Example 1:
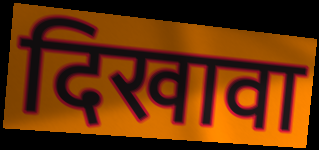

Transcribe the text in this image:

दिखावा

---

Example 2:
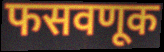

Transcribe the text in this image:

फसवणूक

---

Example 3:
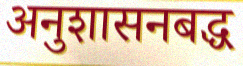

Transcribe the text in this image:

अनुशासनबद्ध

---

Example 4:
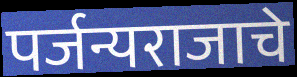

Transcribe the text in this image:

पर्जन्यराजाचे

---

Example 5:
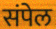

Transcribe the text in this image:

संपेल